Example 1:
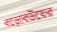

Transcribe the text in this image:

বড়োবউয়ের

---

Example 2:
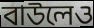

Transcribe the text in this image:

বাউলেও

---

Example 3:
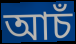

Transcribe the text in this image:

আচঁ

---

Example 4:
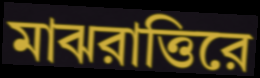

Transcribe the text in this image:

মাঝরাত্তিরে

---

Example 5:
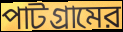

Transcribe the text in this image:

পাটগ্রামের